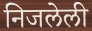
निजलेली